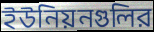
ইউনিয়নগুলির